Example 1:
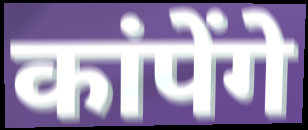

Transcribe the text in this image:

कांपेंगे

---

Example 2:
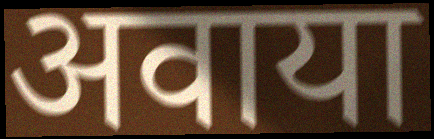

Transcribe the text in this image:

अवाया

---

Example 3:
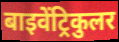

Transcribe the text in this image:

बाइवेंट्रिकुलर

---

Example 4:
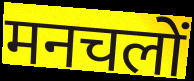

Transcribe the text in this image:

मनचलों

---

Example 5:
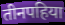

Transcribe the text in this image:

तीनपहिया